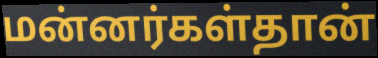
மன்னர்கள்தான்